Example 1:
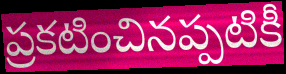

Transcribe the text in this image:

ప్రకటించినప్పటికీ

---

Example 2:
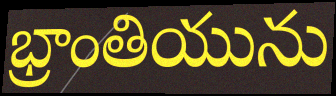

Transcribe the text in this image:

భ్రాంతియును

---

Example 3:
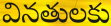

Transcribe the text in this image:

వినతులకు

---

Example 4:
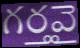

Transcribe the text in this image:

గర్తవై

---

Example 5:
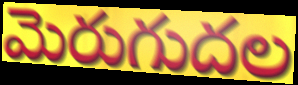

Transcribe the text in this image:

మెరుగుదల